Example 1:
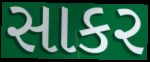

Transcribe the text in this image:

સાકર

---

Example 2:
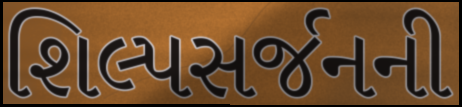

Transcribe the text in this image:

શિલ્પસર્જનની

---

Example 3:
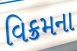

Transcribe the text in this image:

વિક્રમના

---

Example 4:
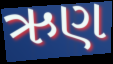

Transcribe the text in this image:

ઋણ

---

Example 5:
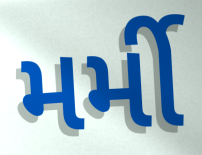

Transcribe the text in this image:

મર્મી